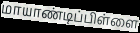
மாயாண்டிப்பிள்ளை